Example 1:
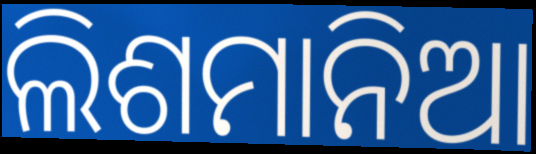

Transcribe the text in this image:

ଲିଶମାନିଆ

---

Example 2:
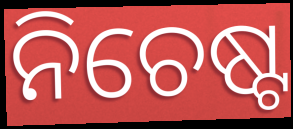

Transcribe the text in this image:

ନିଚେଷ୍ଟ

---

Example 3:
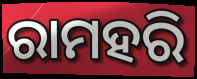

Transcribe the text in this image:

ରାମହରି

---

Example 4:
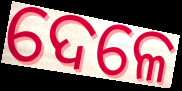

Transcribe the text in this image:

ଦେଳେ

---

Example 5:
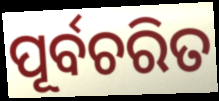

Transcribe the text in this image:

ପୂର୍ବଚରିତ